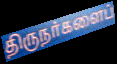
திருநர்களைப்